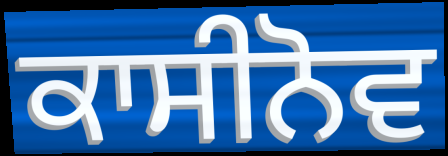
ਕਾਸੀਨੋਵ